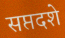
सप्तदशे